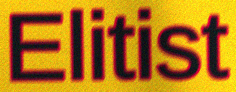
Elitist